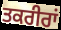
ਤਕਰੀਰਾਂ